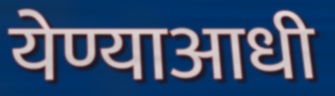
येण्याआधी